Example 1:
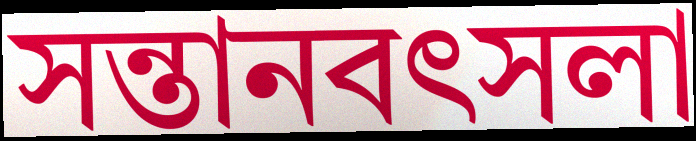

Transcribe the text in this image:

সন্তানবৎসলা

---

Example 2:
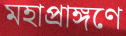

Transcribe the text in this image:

মহাপ্রাঙ্গণে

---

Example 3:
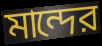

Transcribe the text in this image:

মান্দের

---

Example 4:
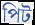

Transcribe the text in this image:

পিট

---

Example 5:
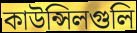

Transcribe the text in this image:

কাউন্সিলগুলি